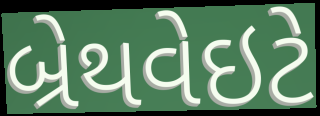
બ્રેથવેઇટે